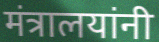
मंत्रालयांनी